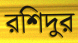
রশিদুর